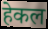
हेकल